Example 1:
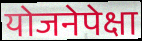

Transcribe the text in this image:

योजनेपेक्षा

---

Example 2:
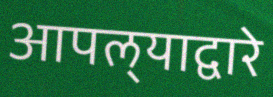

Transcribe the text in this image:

आपल्याद्वारे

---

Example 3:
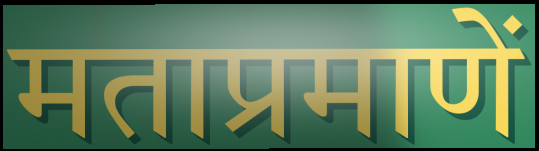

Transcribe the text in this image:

मताप्रमाणें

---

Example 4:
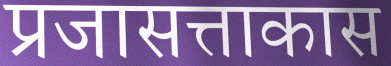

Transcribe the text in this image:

प्रजासत्ताकास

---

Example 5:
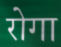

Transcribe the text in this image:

रोगा